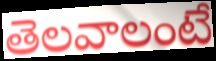
తెలవాలంటే